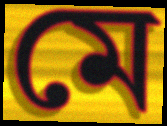
মে